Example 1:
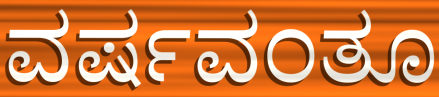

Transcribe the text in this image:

ವರ್ಷವಂತೂ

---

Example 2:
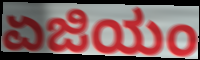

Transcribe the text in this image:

ಏಜಿಯಂ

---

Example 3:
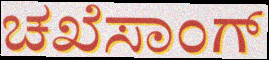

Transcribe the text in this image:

ಚಖೆಸಾಂಗ್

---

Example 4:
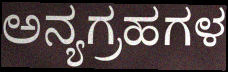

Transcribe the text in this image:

ಅನ್ಯಗ್ರಹಗಳ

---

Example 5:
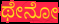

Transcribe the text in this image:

ಥೇನೋ